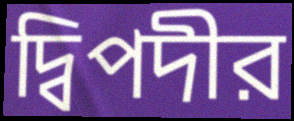
দ্বিপদীর